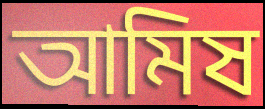
আমিষ